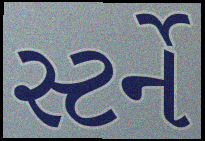
સ્ટર્ને